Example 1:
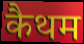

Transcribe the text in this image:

कैथम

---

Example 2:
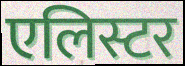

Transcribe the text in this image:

एलिस्टर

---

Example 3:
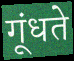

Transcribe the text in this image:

गूंधते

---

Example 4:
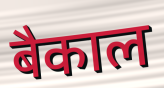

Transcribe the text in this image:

बैकाल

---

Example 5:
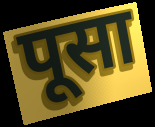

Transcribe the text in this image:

पूसा